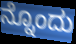
ನ್ನೊಂದು